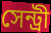
সেন্ট্রী